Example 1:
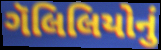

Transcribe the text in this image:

ગૅલિલિયોનું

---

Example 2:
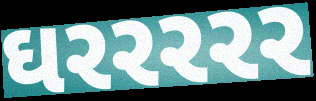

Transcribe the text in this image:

ઘરરરરર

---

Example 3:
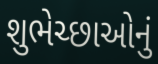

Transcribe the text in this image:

શુભેચ્છાઓનું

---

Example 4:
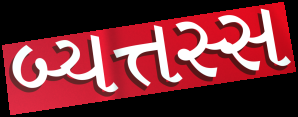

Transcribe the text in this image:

બ્યત્તસ્સ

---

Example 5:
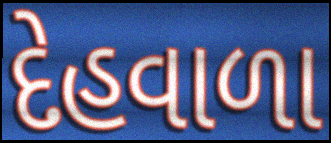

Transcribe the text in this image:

દેહવાળા